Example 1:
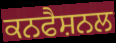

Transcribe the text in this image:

ਕਨਫੈਸ਼ਨਲ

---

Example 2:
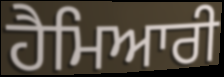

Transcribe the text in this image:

ਹੈਮਿਆਰੀ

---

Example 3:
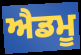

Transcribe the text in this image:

ਐਡਮੂ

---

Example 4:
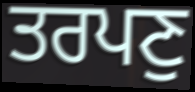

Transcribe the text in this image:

ਤਰਪਣੁ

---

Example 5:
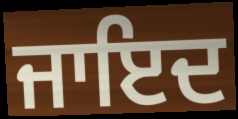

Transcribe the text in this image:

ਜਾਇਦ